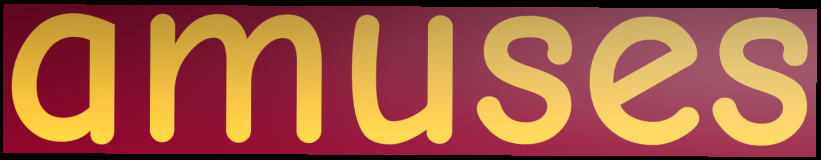
amuses